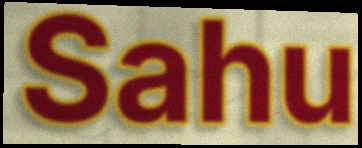
Sahu